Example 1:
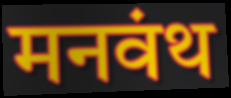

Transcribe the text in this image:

मनवंथ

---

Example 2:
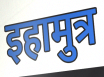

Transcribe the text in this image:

इहामुत्र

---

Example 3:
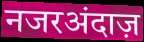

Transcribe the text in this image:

नजरअंदाज़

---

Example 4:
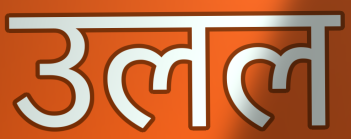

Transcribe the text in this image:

उलल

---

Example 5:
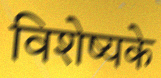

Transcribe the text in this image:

विशेष्यके